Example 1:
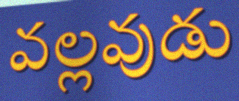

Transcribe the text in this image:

వల్లవుడు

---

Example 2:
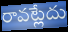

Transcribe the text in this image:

రావట్లేదు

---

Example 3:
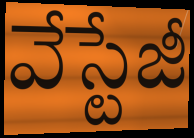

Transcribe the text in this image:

వేస్టేజీ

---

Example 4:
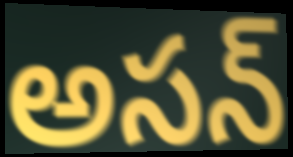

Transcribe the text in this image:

అసన్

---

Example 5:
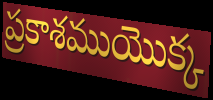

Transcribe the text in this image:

ప్రకాశముయొక్క